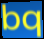
bq